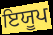
ਇਯੂਪ